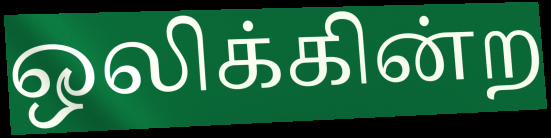
ஒலிக்கின்ற